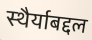
स्थैर्याबद्दल